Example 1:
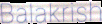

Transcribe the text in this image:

Balakrish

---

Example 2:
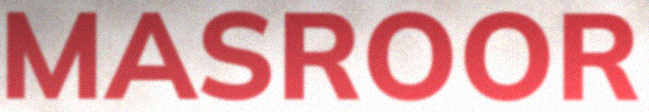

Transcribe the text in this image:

MASROOR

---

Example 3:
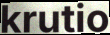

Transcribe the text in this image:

krutio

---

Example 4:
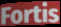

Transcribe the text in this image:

Fortis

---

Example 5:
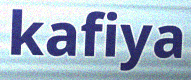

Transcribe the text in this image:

kafiya